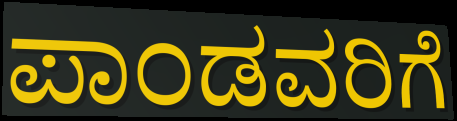
ಪಾಂಡವರಿಗೆ